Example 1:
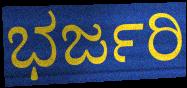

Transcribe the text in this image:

ಭರ್ಜರಿ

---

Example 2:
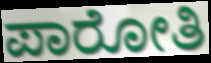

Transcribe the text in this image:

ಪಾರೋತಿ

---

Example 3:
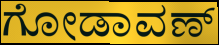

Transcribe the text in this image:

ಗೋಡಾವಣ್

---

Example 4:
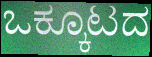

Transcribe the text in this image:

ಒಕ್ಕೂಟದ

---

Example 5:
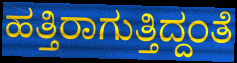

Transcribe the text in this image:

ಹತ್ತಿರಾಗುತ್ತಿದ್ದಂತೆ